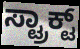
ಸ್ಟ್ರಾಕ್ಟ್